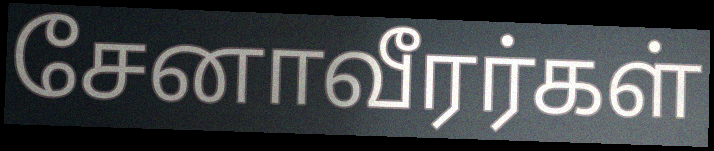
சேனாவீரர்கள்